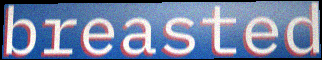
breasted